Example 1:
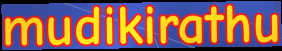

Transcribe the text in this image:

mudikirathu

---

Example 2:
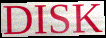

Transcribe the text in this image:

DISK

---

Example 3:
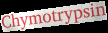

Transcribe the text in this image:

Chymotrypsin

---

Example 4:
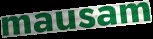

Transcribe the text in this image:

mausam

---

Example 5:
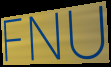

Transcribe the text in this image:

FNU